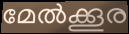
മേൽക്കൂര